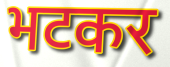
भटकर